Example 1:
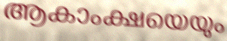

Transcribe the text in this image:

ആകാംക്ഷയെയും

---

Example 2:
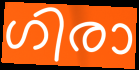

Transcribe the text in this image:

ഗിരാ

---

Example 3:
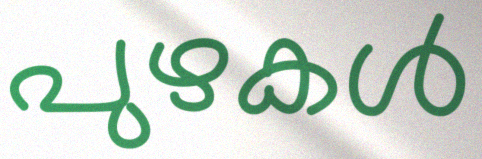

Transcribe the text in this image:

പുഴകൾ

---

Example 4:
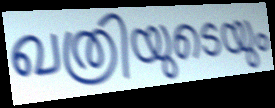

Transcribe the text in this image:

ഖത്രിയുടെയും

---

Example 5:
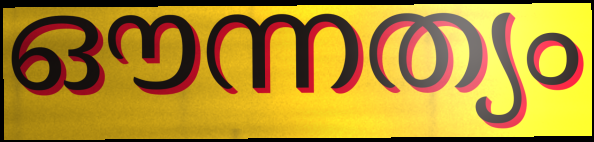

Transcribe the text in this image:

ഔന്നത്യം